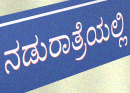
ನಡುರಾತ್ರೆಯಲ್ಲಿ